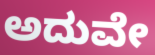
ಅದುವೇ